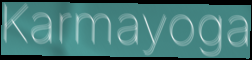
Karmayoga